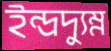
ইন্দ্রদ্যুম্ন